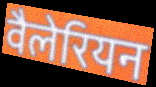
वैलेरियन